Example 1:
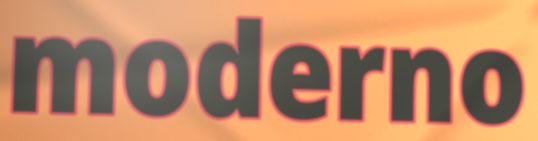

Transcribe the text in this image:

moderno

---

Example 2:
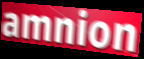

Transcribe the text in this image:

amnion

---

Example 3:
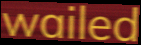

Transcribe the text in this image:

wailed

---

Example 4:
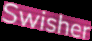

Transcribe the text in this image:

Swisher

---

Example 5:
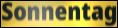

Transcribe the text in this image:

Sonnentag